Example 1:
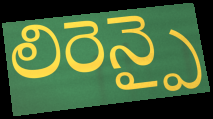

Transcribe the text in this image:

లిరెన్పై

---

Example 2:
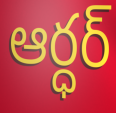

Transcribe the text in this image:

ఆర్ధర్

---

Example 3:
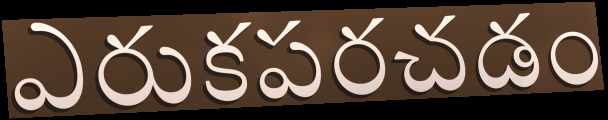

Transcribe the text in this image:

ఎరుకపరచడం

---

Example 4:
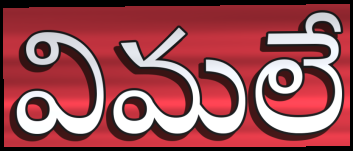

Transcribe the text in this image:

విమలే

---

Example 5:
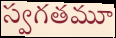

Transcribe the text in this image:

స్వగతమూ